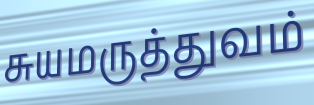
சுயமருத்துவம்